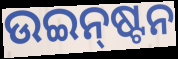
ଉଇନ୍‌ଷ୍ଟନ